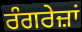
ਰੰਗਰੇਜ਼ਾਂ